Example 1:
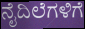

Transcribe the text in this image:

ನೈದಿಲೆಗಳಿಗೆ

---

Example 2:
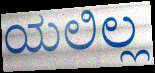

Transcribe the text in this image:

ಯಲಿಲ್ಲ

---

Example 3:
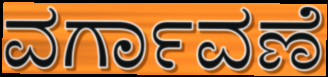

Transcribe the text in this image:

ವರ್ಗಾವಣೆ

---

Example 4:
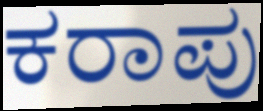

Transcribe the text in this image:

ಕರಾಪು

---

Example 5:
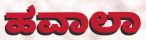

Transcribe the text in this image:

ಹವಾಲಾ